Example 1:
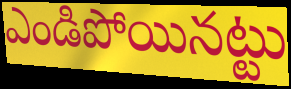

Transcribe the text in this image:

ఎండిపోయినట్టు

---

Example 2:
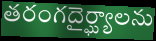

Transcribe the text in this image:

తరంగదైర్ఘ్యాలను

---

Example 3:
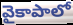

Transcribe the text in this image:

వైకాపాలో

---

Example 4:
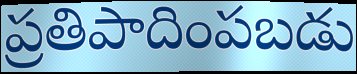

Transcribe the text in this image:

ప్రతిపాదింపబడు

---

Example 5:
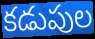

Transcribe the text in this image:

కడుపుల